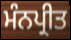
ਮੰਨਪ੍ਰੀਤ